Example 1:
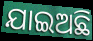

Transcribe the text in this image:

ଯାଇଅଛି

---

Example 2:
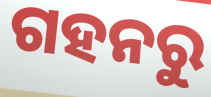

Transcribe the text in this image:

ଗହନରୁ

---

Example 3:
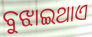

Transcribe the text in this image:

ବୁଝାଇଥାଏ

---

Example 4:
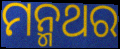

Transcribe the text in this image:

ମନ୍ମଥର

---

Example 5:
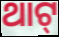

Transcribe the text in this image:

ଥାଟ୍